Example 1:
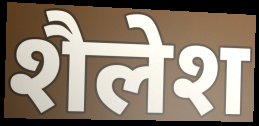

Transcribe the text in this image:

शैलेश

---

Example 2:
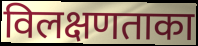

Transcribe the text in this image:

विलक्षणताका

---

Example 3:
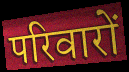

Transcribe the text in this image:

परिवारों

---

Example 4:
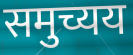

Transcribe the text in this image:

समुच्यय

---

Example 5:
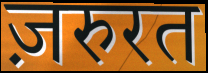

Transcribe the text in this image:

ज़रुरत